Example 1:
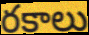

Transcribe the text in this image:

రకాలు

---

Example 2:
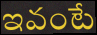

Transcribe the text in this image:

ఇవంటే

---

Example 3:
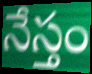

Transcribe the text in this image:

నేస్తం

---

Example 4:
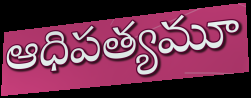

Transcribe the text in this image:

ఆధిపత్యమూ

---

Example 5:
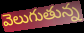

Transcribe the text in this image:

వెలుగుతున్న